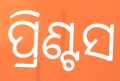
ପ୍ରିଣ୍ଟସ